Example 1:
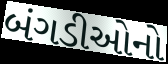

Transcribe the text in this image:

બંગડીઓનો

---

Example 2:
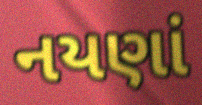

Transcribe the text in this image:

નયણાં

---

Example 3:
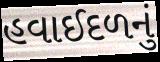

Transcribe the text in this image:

હવાઈદળનું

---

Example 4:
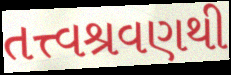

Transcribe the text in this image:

તત્ત્વશ્રવણથી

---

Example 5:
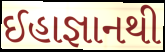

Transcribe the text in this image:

ઈહાજ્ઞાનથી